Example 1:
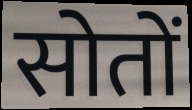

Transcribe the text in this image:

सोतों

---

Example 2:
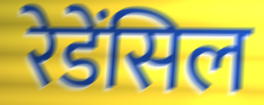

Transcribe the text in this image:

रेडेंसिल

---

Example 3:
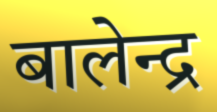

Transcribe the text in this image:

बालेन्द्र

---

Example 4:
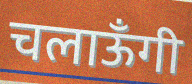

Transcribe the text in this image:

चलाऊँगी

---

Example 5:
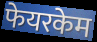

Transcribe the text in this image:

फेयरकेम